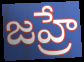
జహ్రే